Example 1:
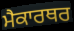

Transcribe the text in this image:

ਮੈਕਾਰਥਰ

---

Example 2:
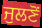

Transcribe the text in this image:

ਜੁਲਣੋਂ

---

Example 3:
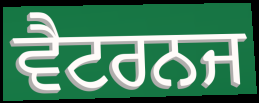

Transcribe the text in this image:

ਵੈਟਰਨਜ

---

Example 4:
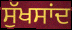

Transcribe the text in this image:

ਸੁੱਖਸਾਂਦ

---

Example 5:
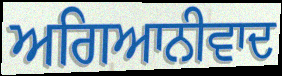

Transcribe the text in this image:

ਅਗਿਆਨੀਵਾਦ